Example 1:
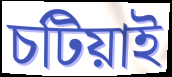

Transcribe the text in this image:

চটিয়াই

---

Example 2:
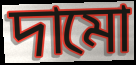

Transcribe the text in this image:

দামো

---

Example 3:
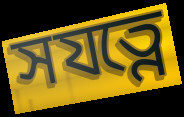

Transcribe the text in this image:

সযত্নে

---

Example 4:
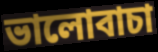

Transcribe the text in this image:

ভালোবাচা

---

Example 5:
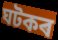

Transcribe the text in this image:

ঘটকৰ